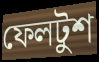
ফেলটুশ